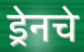
ड्रेनचे